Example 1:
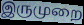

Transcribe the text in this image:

இருமுறை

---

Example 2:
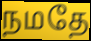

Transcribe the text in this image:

நமதே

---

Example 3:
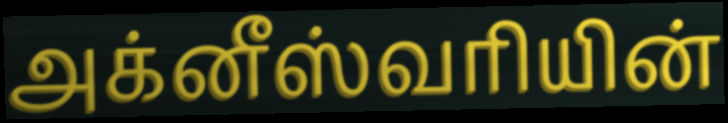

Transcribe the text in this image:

அக்னீஸ்வரியின்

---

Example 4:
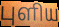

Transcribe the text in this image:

புளிய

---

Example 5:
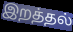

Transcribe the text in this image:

இறத்தல்